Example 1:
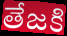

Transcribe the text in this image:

తేజకి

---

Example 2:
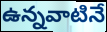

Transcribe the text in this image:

ఉన్నవాటినే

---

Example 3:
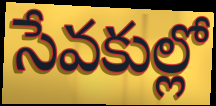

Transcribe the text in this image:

సేవకుల్లో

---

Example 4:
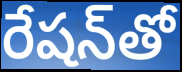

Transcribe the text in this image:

రేషన్‌తో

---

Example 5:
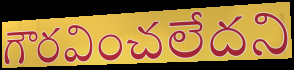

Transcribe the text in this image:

గౌరవించలేదని